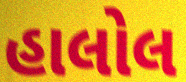
હાલોલ